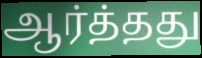
ஆர்த்தது